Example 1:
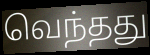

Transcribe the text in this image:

வெந்தது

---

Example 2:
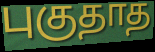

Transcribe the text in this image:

புகுதாத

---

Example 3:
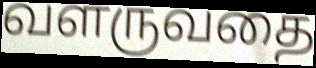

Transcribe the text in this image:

வளருவதை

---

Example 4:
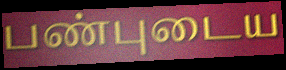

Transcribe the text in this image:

பண்புடைய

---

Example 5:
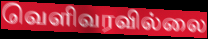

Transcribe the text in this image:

வெளிவரவில்லை